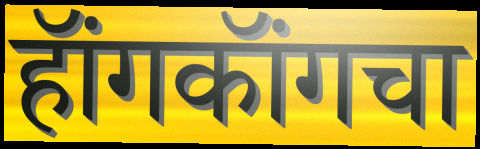
हॉंगकॉंगचा